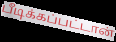
பீடிக்கப்பட்டான்